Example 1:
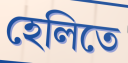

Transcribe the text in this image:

হেলিতে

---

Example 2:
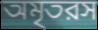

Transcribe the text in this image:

অমৃতরস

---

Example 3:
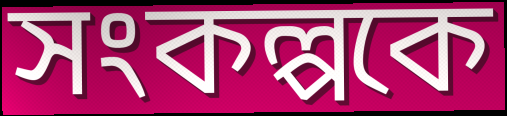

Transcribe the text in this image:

সংকল্পকে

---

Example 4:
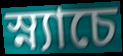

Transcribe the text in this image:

স্ন্যাচে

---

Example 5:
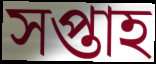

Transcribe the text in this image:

সপ্তাহ